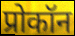
प्रोकॉन